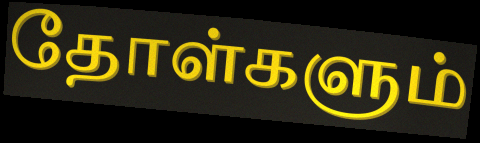
தோள்களும்